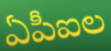
ఏపీఐల